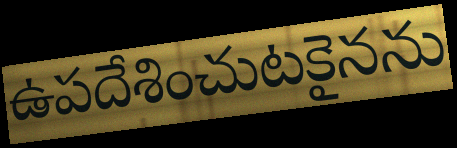
ఉపదేశించుటకైనను